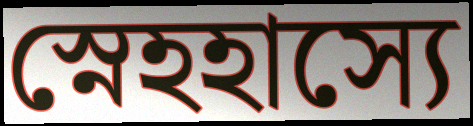
স্নেহহাস্যে